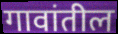
गावांतील